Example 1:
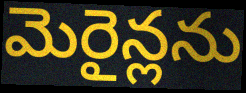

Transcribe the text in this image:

మెరైన్లను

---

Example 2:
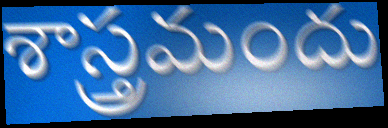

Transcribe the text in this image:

శాస్త్రమందు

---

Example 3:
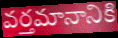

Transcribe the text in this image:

వర్తమానానికి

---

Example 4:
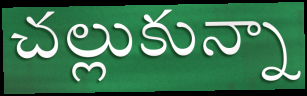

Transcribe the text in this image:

చల్లుకున్నా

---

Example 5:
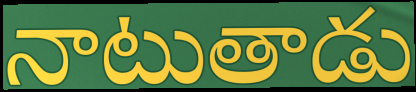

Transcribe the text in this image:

నాటుతాడు